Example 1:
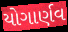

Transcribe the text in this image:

યોગાર્ણવ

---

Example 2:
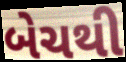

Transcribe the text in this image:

બેચથી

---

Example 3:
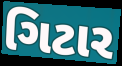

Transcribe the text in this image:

ગિટાર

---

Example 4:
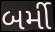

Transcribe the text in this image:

બર્મી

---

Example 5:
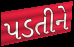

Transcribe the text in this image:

પડતીને